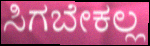
ಸಿಗಬೇಕಲ್ಲ